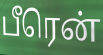
பீரென்